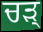
ਚੜ੍